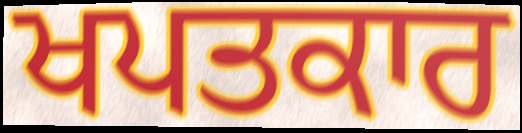
ਖਪਤਕਾਰ